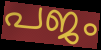
പജം